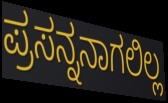
ಪ್ರಸನ್ನನಾಗಲಿಲ್ಲ